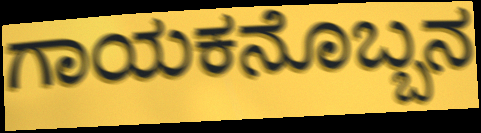
ಗಾಯಕನೊಬ್ಬನ